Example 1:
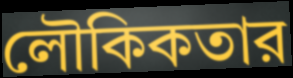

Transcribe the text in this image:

লৌকিকতার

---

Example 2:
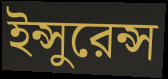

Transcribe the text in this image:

ইন্সুরেন্স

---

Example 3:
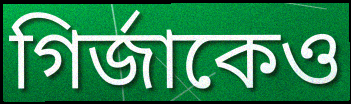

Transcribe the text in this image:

গির্জাকেও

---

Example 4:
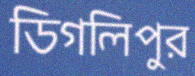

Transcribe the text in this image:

ডিগলিপুর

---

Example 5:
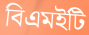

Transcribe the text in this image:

বিএমইটি